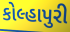
કોલ્હાપુરી